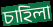
চাহিলা